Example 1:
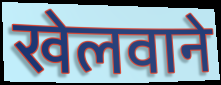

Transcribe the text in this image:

खेलवाने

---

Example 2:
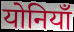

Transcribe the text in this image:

योनियाँ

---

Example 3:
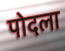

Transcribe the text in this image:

पोदला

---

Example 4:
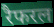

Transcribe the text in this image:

रैफरल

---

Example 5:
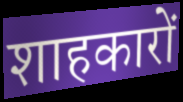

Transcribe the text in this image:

शाहकारों